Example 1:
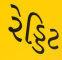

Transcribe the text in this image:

રેડ્ડિટ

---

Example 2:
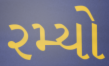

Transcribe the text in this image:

રમ્યો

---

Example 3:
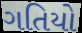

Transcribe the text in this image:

ગતિયો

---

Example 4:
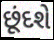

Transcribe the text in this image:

છૂંદશે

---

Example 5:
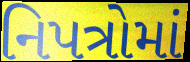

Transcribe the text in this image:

નિપત્રોમાં